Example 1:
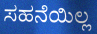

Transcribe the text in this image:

ಸಹನೆಯಿಲ್ಲ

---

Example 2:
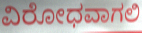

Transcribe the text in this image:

ವಿರೋಧವಾಗಲಿ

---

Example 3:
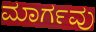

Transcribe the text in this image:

ಮಾರ್ಗವು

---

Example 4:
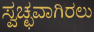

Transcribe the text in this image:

ಸ್ವಚ್ಛವಾಗಿರಲು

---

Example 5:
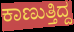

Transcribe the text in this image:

ಕಾಣುತ್ತಿದ್ದ